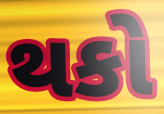
થકો